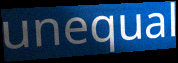
unequal